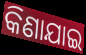
କିଣାଯାଇ